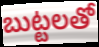
బుట్టలతో